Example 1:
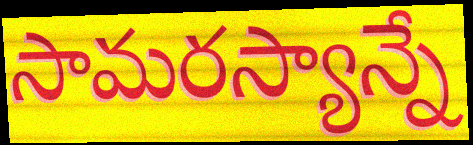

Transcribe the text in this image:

సామరస్యాన్నే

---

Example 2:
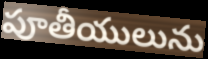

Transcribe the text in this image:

పూతీయులును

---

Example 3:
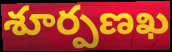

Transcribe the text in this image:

శూర్పణఖ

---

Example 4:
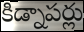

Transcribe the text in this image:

కిడ్నాపర్లు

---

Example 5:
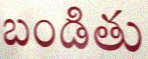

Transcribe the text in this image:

బండితు